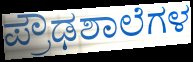
ಪ್ರೌಢಶಾಲೆಗಳ